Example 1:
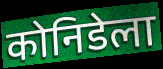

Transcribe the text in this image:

कोनिडेला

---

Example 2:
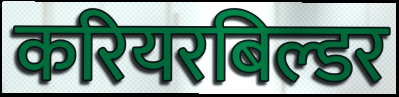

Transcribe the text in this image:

करियरबिल्डर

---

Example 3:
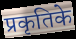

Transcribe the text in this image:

प्रकृतिके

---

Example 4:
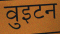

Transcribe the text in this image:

वुइटन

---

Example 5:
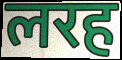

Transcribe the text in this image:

लरह